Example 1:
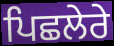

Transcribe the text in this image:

ਪਿਛਲੇਰੇ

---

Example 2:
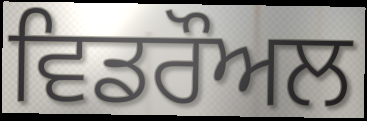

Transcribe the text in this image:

ਵਿਡਰੌਅਲ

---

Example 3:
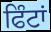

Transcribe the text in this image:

ਫਿੰਟਾਂ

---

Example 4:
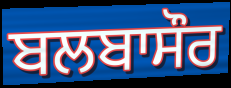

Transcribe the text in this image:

ਬਲਬਾਸੌਰ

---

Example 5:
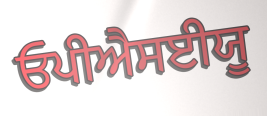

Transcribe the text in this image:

ਓਪੀਐਸਈਯੂ